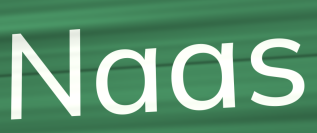
Naas